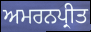
ਅਮਰਨਪ੍ਰੀਤ